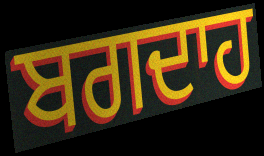
ਬਗਦਾਹ